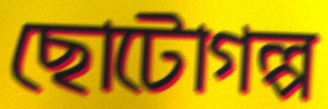
ছোটোগল্প